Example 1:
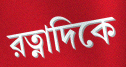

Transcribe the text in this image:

রত্নাদিকে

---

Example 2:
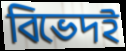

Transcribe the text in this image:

বিভেদই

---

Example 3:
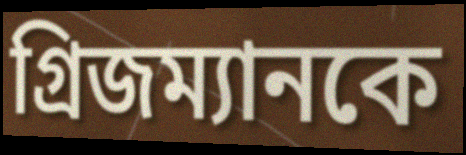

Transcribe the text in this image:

গ্রিজম্যানকে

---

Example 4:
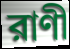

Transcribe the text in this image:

রাণী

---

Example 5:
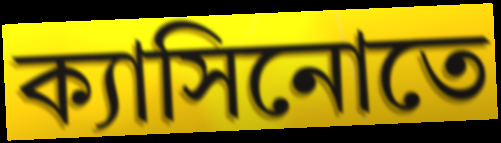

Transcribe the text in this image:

ক্যাসিনোতে